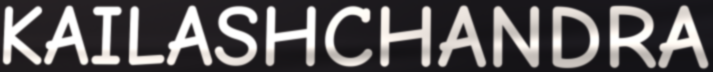
KAILASHCHANDRA